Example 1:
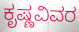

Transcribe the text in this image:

ಕೃಷ್ಣವಿವರ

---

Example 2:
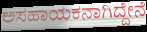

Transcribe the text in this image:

ಅಸಹಾಯಕನಾಗಿದ್ದೇನೆ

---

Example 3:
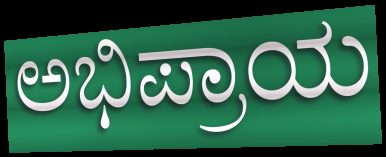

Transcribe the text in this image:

ಅಭಿಪ್ರಾಯ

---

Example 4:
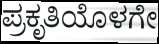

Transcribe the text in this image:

ಪ್ರಕೃತಿಯೊಳಗೇ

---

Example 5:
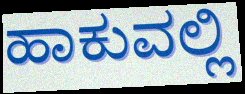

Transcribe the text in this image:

ಹಾಕುವಲ್ಲಿ